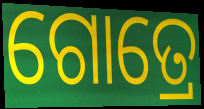
ଗୋତ୍ରେ